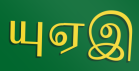
யுஏஇ